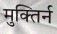
मुक्तिर्न